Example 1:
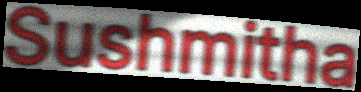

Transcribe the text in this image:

Sushmitha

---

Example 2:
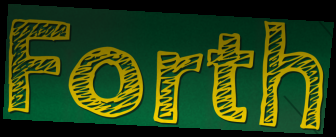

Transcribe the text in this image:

Forth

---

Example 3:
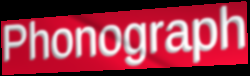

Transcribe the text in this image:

Phonograph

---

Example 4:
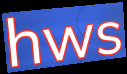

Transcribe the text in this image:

hws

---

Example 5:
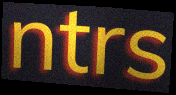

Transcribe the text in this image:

ntrs